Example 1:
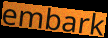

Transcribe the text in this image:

embark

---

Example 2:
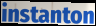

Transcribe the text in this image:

instanton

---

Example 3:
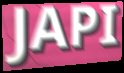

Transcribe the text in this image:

JAPI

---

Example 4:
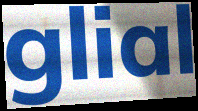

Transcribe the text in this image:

glial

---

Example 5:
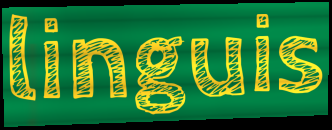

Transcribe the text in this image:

linguis